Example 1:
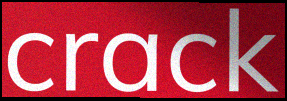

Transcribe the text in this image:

crack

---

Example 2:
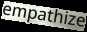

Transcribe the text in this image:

empathize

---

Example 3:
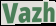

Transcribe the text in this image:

Vazh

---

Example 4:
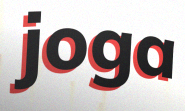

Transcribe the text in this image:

joga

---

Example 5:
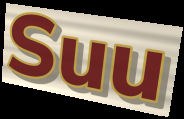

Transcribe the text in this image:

Suu